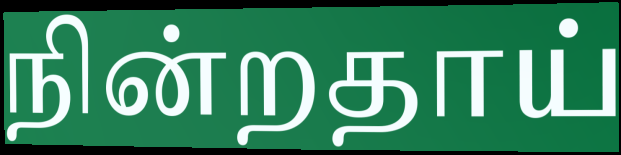
நின்றதாய்